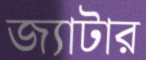
জ্যাটার